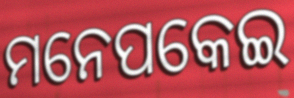
ମନେପକେଇ